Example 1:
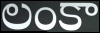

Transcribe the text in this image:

లంకా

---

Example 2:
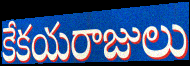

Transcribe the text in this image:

కేకయరాజులు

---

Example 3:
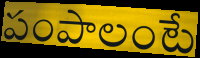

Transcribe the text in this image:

పంపాలంటే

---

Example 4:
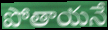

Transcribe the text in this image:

పోతాయనే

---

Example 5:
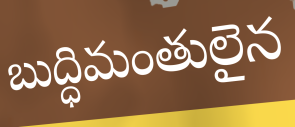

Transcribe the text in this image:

బుద్ధిమంతులైన